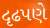
દૃઢપણે